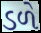
ડળે